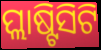
ପ୍ଲାଷ୍ଟିସିଟି